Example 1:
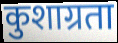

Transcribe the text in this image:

कुशाग्रता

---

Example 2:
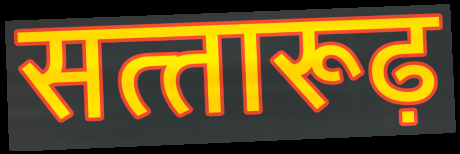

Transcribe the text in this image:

सत्‍तारूढ़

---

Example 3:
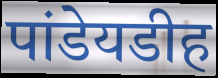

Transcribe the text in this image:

पांडेयडीह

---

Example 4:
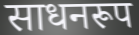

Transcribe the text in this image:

साधनरूप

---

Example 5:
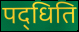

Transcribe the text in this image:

पद्धिति